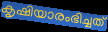
കൃഷിയാരംഭിച്ചത്